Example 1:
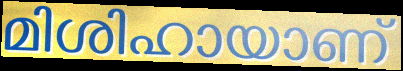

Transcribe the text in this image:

മിശിഹായാണ്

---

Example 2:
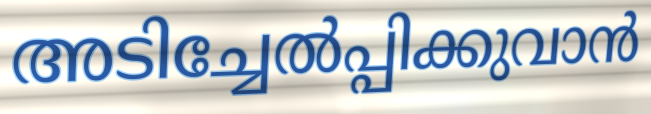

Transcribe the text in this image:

അടിച്ചേൽപ്പിക്കുവാൻ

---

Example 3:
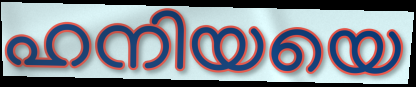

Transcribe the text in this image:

ഹനിയയെ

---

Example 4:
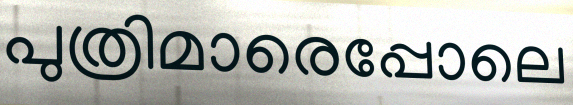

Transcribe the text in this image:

പുത്രിമാരെപ്പോലെ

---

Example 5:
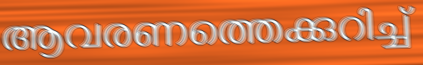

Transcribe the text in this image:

ആവരണത്തെക്കുറിച്ച്